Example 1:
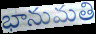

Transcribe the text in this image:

భానుమతి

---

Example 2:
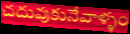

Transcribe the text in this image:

చదువుకునేవాళ్ళం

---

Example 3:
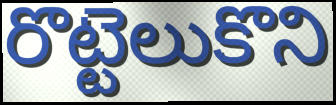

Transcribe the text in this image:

రొట్టెలుకొని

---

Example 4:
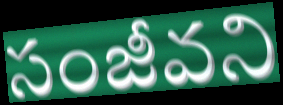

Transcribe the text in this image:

సంజీవని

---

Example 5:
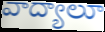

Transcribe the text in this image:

వాద్యాలూ